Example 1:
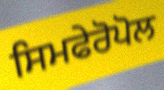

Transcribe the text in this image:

ਸਿਮਫੇਰੋਪੋਲ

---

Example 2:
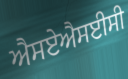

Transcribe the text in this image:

ਐਸਏਐਸਈਸੀ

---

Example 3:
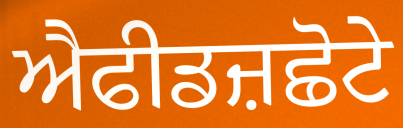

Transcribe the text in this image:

ਐਫੀਡਜ਼ਛੋਟੇ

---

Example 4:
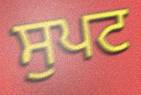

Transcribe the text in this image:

ਸੁਪਟ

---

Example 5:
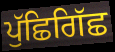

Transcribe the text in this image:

ਪੁੱਛਿਗਿੱਛ